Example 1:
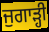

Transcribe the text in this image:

ਜੁਗਾੜ੍ਹੀ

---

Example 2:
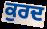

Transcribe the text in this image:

ਕੁਰਦ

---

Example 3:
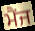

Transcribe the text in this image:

ਮੈਂਜ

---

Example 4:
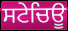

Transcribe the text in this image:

ਸਟੇਚਿਊ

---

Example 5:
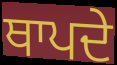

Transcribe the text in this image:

ਥਾਪਦੇ